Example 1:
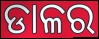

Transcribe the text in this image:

ଡାଳର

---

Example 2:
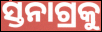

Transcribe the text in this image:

ସ୍ତନାଗ୍ରକୁ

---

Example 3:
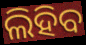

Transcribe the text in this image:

ଲିହିବ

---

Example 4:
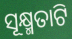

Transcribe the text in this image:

ସୂକ୍ଷ୍ମତାଟି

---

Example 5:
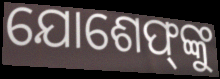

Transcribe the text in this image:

ଯୋଶେଫ୍‌ଙ୍କୁ